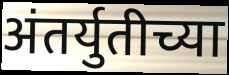
अंतर्युतीच्या